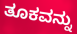
ತೂಕವನ್ನು